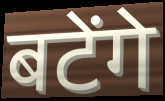
बटेंगे